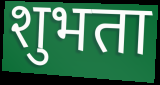
शुभता